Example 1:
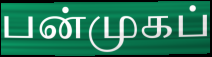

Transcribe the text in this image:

பன்முகப்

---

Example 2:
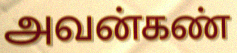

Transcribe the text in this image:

அவன்கண்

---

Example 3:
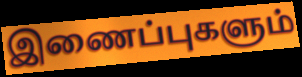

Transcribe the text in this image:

இணைப்புகளும்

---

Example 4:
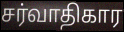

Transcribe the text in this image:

சர்வாதிகார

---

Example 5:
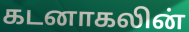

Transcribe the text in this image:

கடனாகலின்